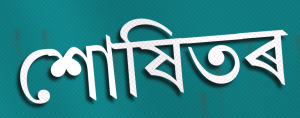
শোষিতৰ